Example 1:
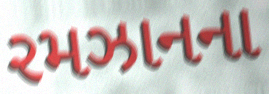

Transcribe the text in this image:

રમઝાનના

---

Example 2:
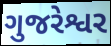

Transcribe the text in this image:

ગુજરેશ્વર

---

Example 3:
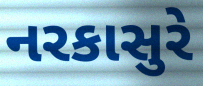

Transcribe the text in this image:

નરકાસુરે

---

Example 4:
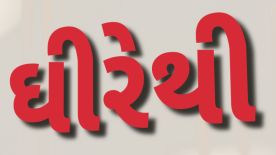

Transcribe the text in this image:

ઘીરેથી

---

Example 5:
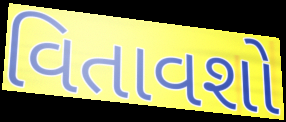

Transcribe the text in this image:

વિતાવશો